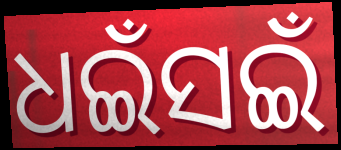
ଧଇଁସଇଁ